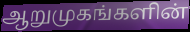
ஆறுமுகங்களின்